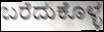
ಬರೆದುಕೊಳ್ಳ